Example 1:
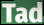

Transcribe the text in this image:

Tad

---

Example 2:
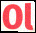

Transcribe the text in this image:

Ol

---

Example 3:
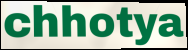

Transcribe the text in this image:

chhotya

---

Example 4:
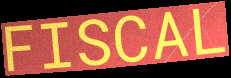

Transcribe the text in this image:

FISCAL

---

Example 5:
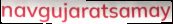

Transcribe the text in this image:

navgujaratsamay